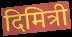
दिमित्री